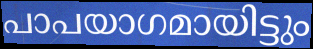
പാപയാഗമായിട്ടും